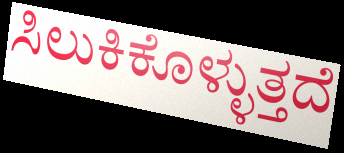
ಸಿಲುಕಿಕೊಳ್ಳುತ್ತದೆ